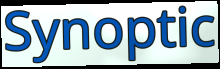
Synoptic